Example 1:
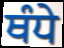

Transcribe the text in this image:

ਥੰਧੇ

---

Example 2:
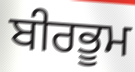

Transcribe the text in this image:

ਬੀਰਭੂਮ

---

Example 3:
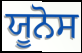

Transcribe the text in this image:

ਯੂਨੋਸ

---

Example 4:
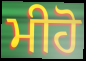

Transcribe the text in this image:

ਮੀਹੋ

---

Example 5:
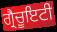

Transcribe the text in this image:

ਗ੍ਰੈਚੂਇਟੀ